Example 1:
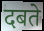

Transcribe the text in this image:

दबते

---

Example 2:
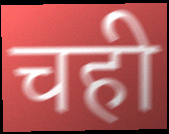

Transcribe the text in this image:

चही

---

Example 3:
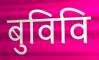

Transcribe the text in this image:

बुविवि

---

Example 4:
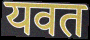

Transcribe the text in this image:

यवत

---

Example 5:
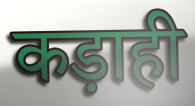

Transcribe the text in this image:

कड़ाही